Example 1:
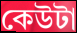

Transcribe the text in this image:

কেউটা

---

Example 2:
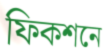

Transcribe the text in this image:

ফিকশনে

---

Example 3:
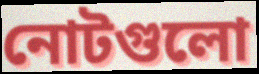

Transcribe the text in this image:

নোটগুলো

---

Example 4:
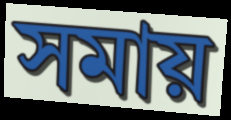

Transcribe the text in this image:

সমায়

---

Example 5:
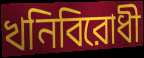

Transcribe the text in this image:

খনিবিরোধী